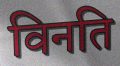
विनति